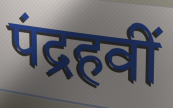
पंद्रहवीं